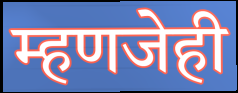
म्हणजेही